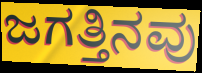
ಜಗತ್ತಿನವು